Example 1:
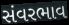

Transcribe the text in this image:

સંવરભાવ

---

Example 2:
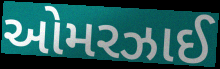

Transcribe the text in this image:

ઓમરઝાઈ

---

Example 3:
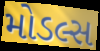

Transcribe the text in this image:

મોડલ્સ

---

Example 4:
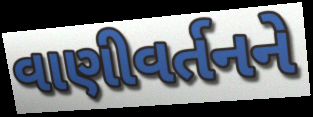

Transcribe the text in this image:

વાણીવર્તનને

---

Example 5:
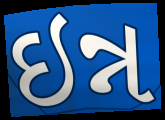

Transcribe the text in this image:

ઇન્ન